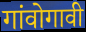
गांवोगावी